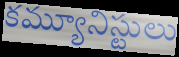
కమ్యూనిస్టులు